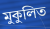
মুকুলিত